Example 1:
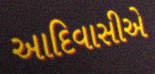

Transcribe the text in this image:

આદિવાસીએ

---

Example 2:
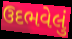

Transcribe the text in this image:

ઉદભવેલું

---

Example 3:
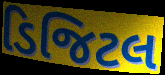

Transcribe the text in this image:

ડિજિટલ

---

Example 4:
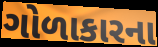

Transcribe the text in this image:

ગોળાકારના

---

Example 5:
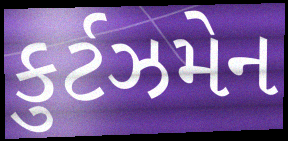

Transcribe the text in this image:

કુર્ટઝમેન